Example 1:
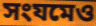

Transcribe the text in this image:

সংযমেও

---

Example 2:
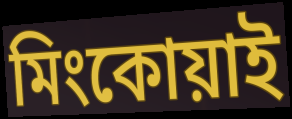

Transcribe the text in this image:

মিংকোয়াই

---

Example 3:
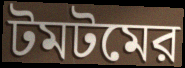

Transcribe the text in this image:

টমটমের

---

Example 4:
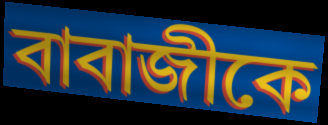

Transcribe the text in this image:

বাবাজীকে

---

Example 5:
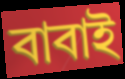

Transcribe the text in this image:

বাবাই